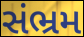
સંભ્રમ